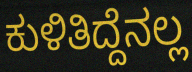
ಕುಳಿತಿದ್ದೆನಲ್ಲ